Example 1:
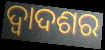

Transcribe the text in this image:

ଦ୍ୱାଦଶର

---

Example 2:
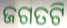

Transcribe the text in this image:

ଜଗତଟି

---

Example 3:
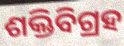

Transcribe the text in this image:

ଶକ୍ତିବିଗ୍ରହ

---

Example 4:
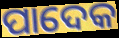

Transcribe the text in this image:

ପାଦେକ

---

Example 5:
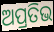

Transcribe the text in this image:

ଅପ୍ରତିଭ